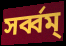
সৰ্ব্বম্